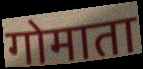
गोमाता